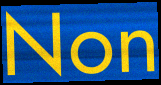
Non